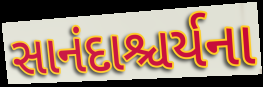
સાનંદાશ્ચર્યના